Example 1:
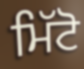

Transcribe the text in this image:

ਮਿੱਟੋ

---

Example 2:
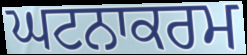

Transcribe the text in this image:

ਘਟਨਾਕਰਮ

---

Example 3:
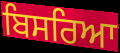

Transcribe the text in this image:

ਬਿਸਰਿਆ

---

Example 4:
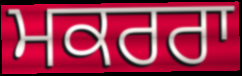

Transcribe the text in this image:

ਮਕਰਰਾ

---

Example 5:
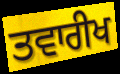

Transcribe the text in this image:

ਤਵਾਰੀਖ